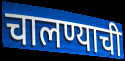
चालण्याची